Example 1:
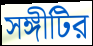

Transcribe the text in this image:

সঙ্গীটির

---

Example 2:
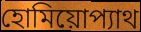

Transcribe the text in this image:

হোমিয়োপ্যাথ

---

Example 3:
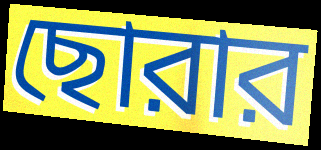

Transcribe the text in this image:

ছোরার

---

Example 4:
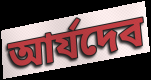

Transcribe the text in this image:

আর্যদেব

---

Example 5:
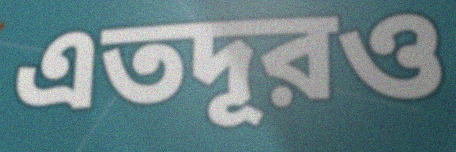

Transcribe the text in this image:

এতদূরও